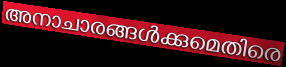
അനാചാരങ്ങൾക്കുമെതിരെ